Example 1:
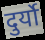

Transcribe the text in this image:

दुर्यो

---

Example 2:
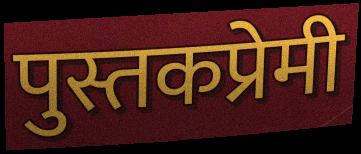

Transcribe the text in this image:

पुस्तकप्रेमी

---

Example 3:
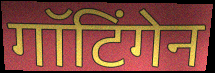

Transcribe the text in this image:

गॉटिंगेन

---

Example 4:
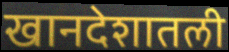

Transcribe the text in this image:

खानदेशातली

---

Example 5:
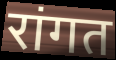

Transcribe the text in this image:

रांगत